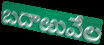
బదాఱువేల